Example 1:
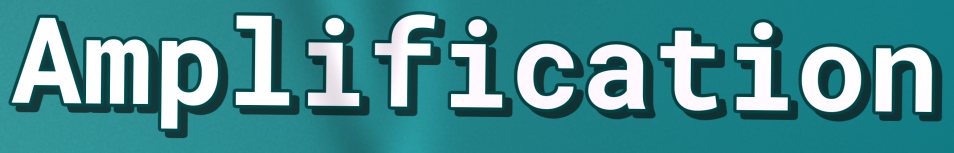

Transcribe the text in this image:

Amplification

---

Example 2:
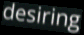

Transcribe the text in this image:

desiring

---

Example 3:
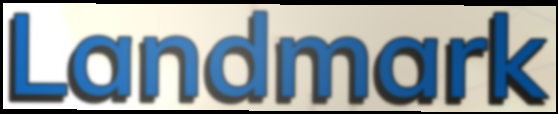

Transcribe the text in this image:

Landmark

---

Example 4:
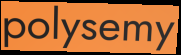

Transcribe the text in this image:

polysemy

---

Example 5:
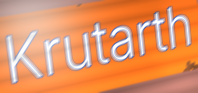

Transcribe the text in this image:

Krutarth